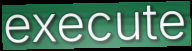
execute